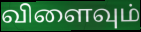
விளைவும்